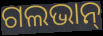
ଗଲଭାନ୍